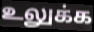
உலுக்க